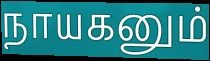
நாயகனும்